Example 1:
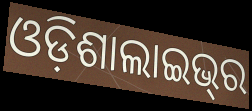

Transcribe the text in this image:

ଓଡ଼ିଶାଲାଇଭ୍‌ର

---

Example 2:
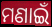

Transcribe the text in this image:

ମଣାଇଁ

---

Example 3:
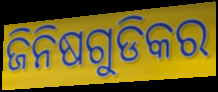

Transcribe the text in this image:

ଜିନିଷଗୁଡିକର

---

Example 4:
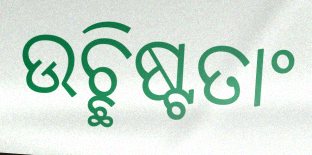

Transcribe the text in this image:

ଉଚ୍ଛିଷ୍ଟତାଂ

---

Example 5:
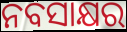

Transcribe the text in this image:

ନବସାକ୍ଷର